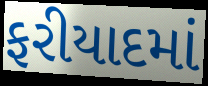
ફરીયાદમાં